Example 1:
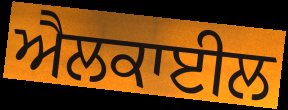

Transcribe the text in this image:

ਐਲਕਾਈਲ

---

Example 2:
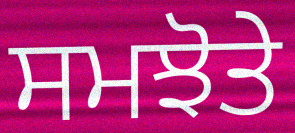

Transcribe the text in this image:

ਸਮਝੋਤੇ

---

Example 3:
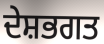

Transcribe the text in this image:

ਦੇਸ਼ਭਗਤ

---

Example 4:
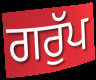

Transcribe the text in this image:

ਗਰੁੱਪ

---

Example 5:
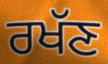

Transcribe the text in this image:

ਰਖੱਣ